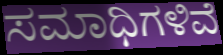
ಸಮಾಧಿಗಳಿವೆ